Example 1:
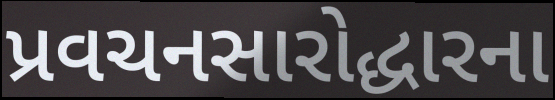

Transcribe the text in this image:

પ્રવચનસારોદ્ધારના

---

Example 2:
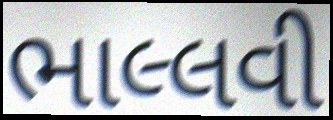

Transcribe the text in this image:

ભાલ્લવી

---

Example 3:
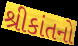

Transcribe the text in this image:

શ્રીકાંતનો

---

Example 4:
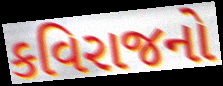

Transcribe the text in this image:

કવિરાજનો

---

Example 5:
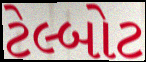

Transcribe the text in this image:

ટેલ્બોટ